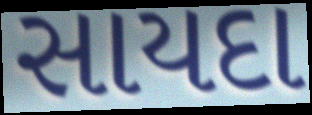
સાયદા